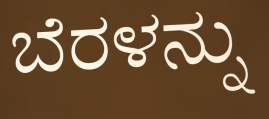
ಬೆರಳನ್ನು